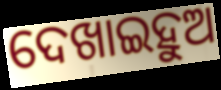
ଦେଖାଇହୁଅ